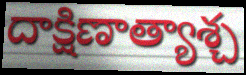
దాక్షిణాత్యాశ్చ